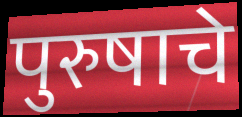
पुरुषाचे